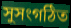
সুসংগঠিত